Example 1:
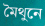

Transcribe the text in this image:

মৈথুনে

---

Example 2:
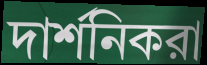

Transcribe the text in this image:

দার্শনিকরা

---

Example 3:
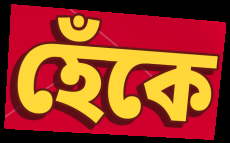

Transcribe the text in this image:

হেঁকে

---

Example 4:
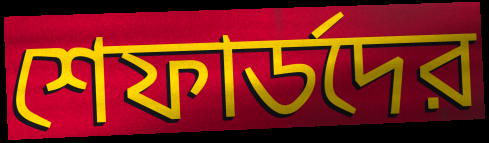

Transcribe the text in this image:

শেফার্ডদের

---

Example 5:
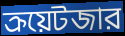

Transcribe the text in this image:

ক্রয়েটজার